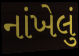
નાંખેલું